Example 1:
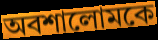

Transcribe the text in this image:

অবশালোমকে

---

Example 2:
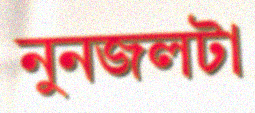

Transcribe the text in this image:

নুনজলটা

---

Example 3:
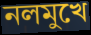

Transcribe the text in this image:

নলমুখে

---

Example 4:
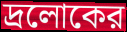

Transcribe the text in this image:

দ্রলোকের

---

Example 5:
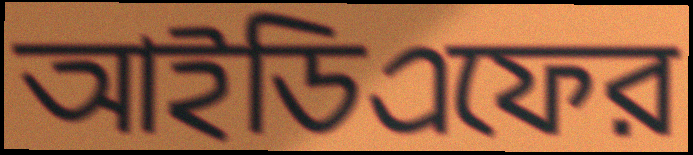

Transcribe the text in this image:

আইডিএফের